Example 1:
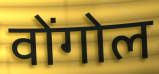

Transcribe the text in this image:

वोंगोल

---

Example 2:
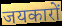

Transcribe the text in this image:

जयकारों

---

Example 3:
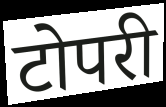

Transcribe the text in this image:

टोपरी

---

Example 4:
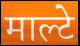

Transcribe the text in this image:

माल्टे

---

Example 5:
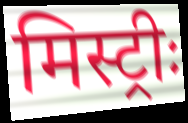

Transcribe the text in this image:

मिस्ट्रीः